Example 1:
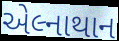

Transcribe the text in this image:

એલ્નાથાન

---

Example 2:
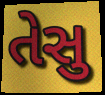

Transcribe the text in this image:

તેસુ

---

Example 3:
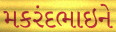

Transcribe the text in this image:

મકરંદભાઇને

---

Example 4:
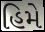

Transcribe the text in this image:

હિમે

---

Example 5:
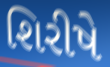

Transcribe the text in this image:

શિરીષે